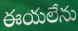
ఈయలేను